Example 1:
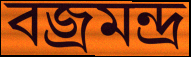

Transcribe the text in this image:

বজ্রমন্দ্র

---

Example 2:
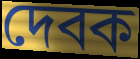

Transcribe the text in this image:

দেবক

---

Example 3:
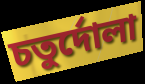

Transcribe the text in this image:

চতুর্দোলা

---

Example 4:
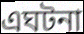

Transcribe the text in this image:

এঘটনা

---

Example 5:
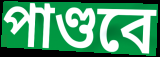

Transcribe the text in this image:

পাণ্ডবে